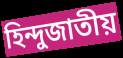
হিন্দুজাতীয়